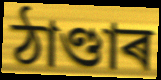
ঠাণ্ডাৰ